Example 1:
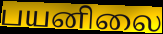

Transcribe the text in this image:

பயனிலை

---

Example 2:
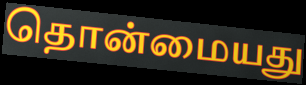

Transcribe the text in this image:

தொன்மையது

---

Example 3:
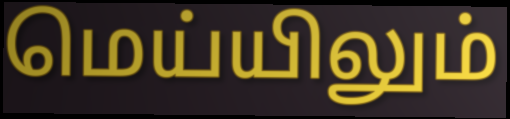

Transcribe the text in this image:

மெய்யிலும்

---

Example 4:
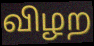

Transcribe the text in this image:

விழற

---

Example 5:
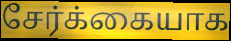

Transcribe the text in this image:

சேர்க்கையாக